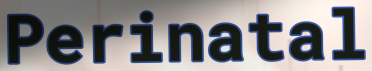
Perinatal